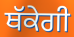
ਥੱਕੇਗੀ